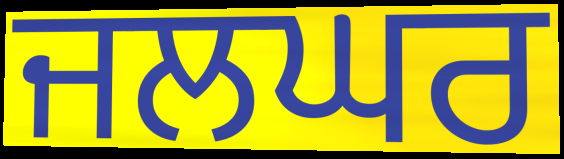
ਜਲਘਰ